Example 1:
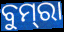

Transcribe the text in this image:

ବୁମ୍‌ରା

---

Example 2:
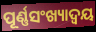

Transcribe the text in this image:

ପୂର୍ଣ୍ଣସଂଖ୍ୟାଦ୍ଵୟ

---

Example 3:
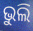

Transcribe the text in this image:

ଭୁଲି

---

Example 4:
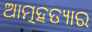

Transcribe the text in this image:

ଆତ୍ମହତ୍ୟାର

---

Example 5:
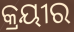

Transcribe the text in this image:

କ୍ରୟୀର